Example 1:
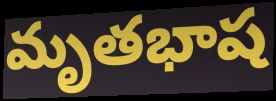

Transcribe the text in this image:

మృతభాష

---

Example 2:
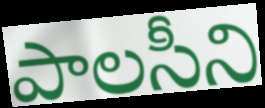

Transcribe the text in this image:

పాలసీని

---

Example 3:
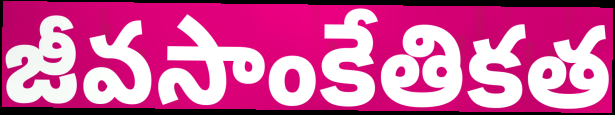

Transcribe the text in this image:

జీవసాంకేతికత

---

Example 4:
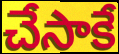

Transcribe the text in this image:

చేసాకే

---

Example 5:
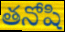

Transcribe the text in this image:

తనోషి